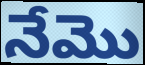
నేమొ